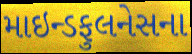
માઇન્ડફુલનેસના